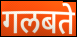
गलबते